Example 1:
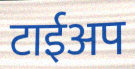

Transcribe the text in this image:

टाईअप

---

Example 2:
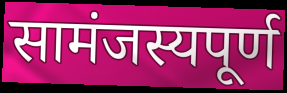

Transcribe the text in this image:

सामंजस्यपूर्ण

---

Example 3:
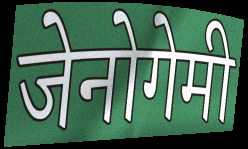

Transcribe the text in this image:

जेनोगेमी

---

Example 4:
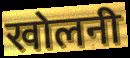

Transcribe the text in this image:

खोलनी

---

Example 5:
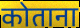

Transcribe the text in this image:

कोताना